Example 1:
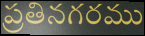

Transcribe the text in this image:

ప్రతినగరము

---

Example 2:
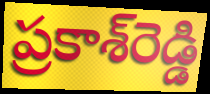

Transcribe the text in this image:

ప్రకాశ్‌రెడ్డి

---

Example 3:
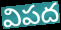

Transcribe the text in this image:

విపద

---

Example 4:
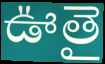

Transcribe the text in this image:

ఊతై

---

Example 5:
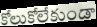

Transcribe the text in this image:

కోలుకోలేకుండా